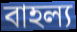
বাহল্য